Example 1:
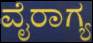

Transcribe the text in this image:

ವೈರಾಗ್ಯ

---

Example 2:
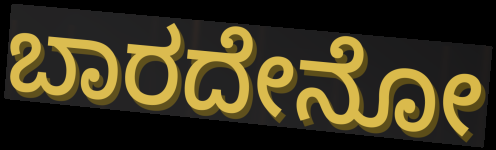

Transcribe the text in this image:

ಬಾರದೇನೋ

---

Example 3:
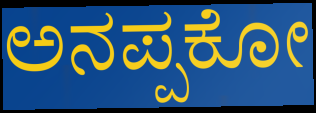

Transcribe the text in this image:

ಅನಪ್ಪಕೋ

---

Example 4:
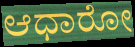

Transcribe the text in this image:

ಆಧಾರೋ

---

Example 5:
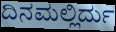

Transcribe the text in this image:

ದಿನಮಲ್ಲಿರ್ದು